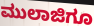
ಮುಲಾಜಿಗೂ